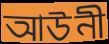
আউনী